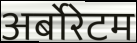
अर्बोरेटम